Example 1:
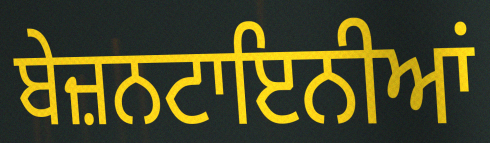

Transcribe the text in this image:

ਬੇਜ਼ਨਟਾਇਨੀਆਂ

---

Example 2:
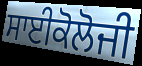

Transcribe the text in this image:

ਸਾਈਕੋਲੋਜੀ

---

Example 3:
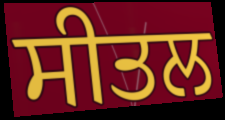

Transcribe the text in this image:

ਸੀਤਲ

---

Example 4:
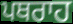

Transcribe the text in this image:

ਪਥਰਾਹ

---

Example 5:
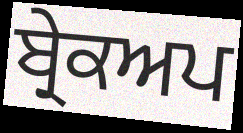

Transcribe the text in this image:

ਬ੍ਰੇਕਅਪ